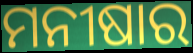
ମନୀଷାର